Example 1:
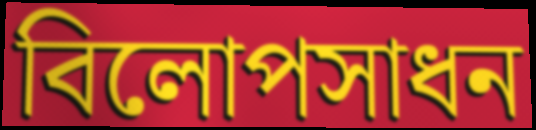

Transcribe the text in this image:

বিলোপসাধন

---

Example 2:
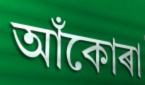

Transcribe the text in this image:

আঁকোৰা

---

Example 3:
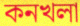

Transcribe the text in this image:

কনখলা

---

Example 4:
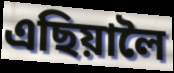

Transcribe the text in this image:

এছিয়ালৈ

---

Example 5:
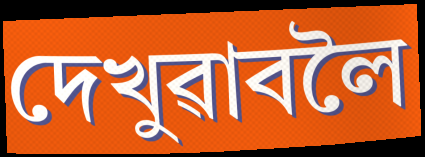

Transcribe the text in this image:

দেখুৱাবলৈ